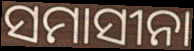
ସମାସୀନା